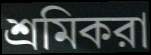
শ্রমিকরা